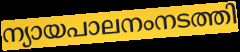
ന്യായപാലനംനടത്തി